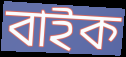
বাইক